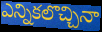
ఎన్నికలొచ్చినా